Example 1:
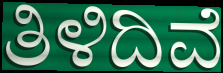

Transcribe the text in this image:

ತಿಳಿದಿವೆ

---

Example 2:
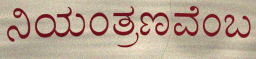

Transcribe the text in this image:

ನಿಯಂತ್ರಣವೆಂಬ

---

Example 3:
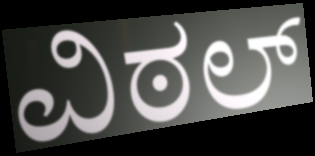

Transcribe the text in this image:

ವಿಠಲ್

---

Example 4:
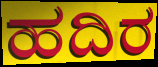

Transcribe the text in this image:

ಹದಿರ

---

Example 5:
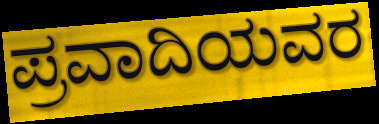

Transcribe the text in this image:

ಪ್ರವಾದಿಯವರ